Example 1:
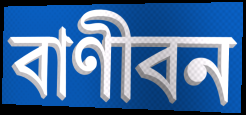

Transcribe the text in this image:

বাণীবন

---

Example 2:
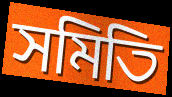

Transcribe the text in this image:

সমিতি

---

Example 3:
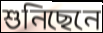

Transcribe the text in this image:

শুনিছেনে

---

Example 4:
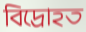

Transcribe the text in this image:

বিদ্ৰোহত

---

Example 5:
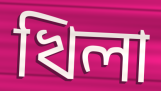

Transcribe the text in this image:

খিলা